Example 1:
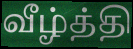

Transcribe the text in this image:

வீழ்த்தி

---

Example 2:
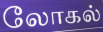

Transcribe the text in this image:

லோகல்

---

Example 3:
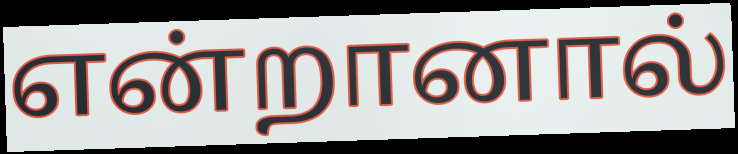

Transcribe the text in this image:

என்றானால்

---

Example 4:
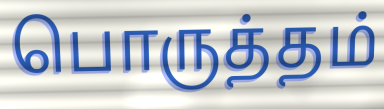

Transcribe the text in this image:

பொருத்தம்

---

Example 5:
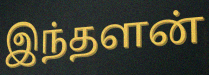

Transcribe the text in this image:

இந்தளன்